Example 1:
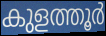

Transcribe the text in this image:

കുളത്തൂർ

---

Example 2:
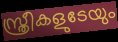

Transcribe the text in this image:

സ്ത്രീകളുടേയും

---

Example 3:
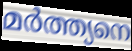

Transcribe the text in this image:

മർത്ത്യനെ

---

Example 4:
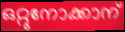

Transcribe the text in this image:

ഒറ്റുനോക്കാന്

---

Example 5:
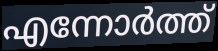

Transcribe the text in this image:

എന്നോർത്ത്